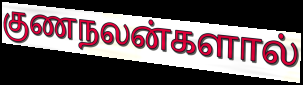
குணநலன்களால்